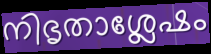
നിഭൃതാശ്ലേഷം